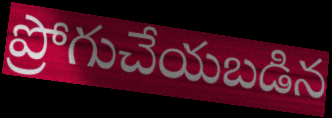
ప్రోగుచేయబడిన